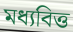
মধ্যবিত্ত